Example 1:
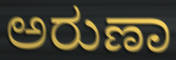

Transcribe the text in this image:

ಅರುಣಾ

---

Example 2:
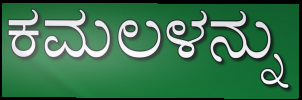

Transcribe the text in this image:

ಕಮಲಳನ್ನು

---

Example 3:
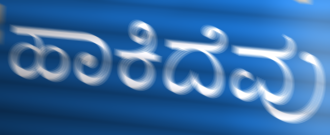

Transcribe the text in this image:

ಹಾಕಿದೆವು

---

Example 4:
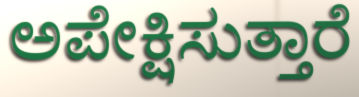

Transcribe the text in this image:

ಅಪೇಕ್ಷಿಸುತ್ತಾರೆ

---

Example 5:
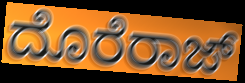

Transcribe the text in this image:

ದೊರೆರಾಜ್